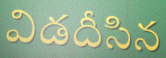
విడదీసిన